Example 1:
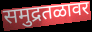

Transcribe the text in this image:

समुद्रतळावर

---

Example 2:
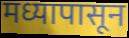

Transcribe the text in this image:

मध्यापासून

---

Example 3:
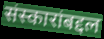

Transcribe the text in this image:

संस्कारांबद्दल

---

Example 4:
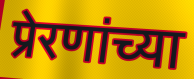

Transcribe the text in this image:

प्रेरणांच्या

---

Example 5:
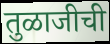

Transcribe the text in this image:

तुळाजीची